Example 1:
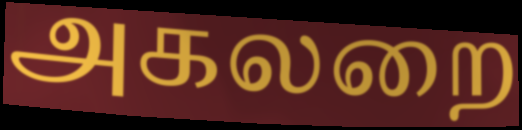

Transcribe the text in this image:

அகலறை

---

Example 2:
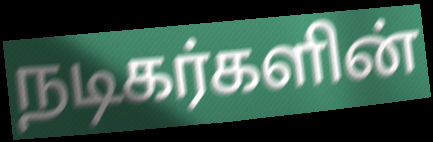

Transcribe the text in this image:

நடிகர்களின்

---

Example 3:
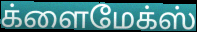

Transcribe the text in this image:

க்ளைமேக்ஸ்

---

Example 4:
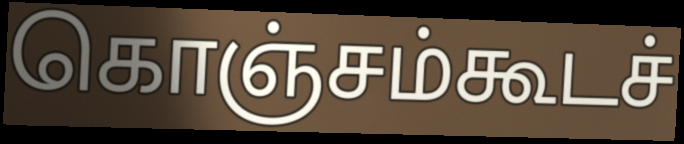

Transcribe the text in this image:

கொஞ்சம்கூடச்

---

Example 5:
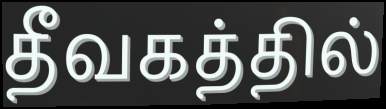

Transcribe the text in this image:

தீவகத்தில்